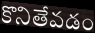
కొనితేవడం